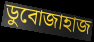
ডুবোজাহাজ